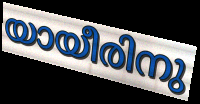
യായീരിനു